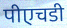
पीएचडी